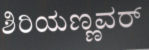
ಶಿರಿಯಣ್ಣವರ್